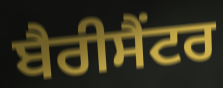
ਬੈਰੀਸੈਂਟਰ